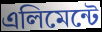
এলিমেন্টে